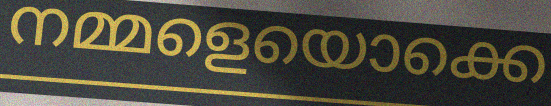
നമ്മളെയൊക്കെ